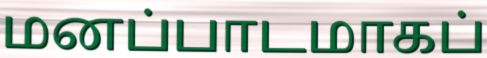
மனப்பாடமாகப்